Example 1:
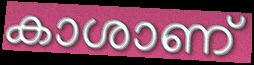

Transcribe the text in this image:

കാശാണ്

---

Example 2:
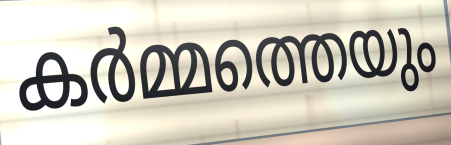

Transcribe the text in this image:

കർമ്മത്തെയും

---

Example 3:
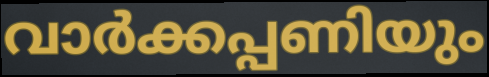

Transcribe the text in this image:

വാർക്കപ്പണിയും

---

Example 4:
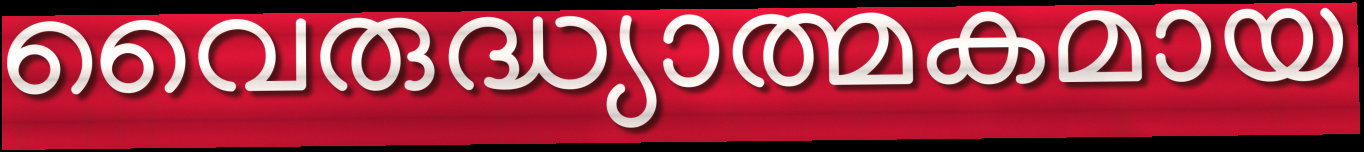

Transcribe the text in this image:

വൈരുദ്ധ്യാത്മകമായ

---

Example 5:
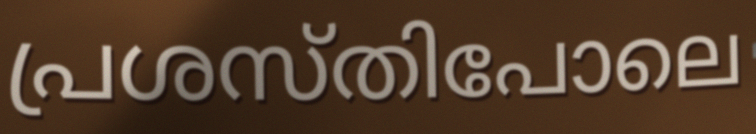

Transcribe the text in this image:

പ്രശസ്തിപോലെ